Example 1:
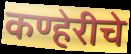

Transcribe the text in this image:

कण्हेरीचे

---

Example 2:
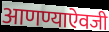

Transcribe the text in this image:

आणण्याऐवजी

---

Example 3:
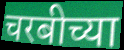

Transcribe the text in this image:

चरबीच्या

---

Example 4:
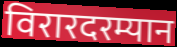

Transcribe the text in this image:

विरारदरम्यान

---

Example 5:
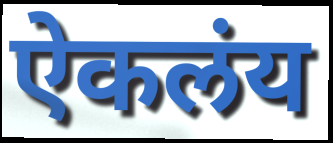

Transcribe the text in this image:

ऐकलंय